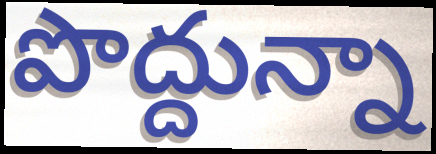
పొద్దున్నా